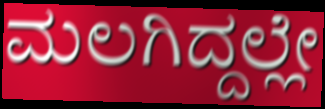
ಮಲಗಿದ್ದಲ್ಲೇ